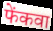
फेंकवा